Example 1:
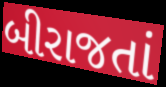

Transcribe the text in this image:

બીરાજતાં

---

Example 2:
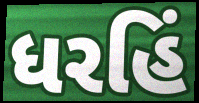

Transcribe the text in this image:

ધરહિં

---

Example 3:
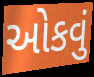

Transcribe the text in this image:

ઓકવું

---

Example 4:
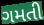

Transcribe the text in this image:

ગમતી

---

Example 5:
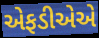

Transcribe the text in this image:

એફડીએએ